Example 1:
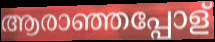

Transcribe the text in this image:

ആരാഞ്ഞപ്പോള്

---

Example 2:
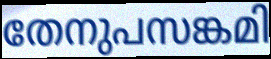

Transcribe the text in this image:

തേനുപസങ്കമി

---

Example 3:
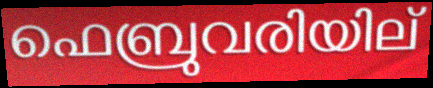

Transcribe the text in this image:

ഫെബ്രുവരിയില്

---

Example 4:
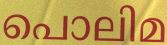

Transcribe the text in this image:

പൊലിമ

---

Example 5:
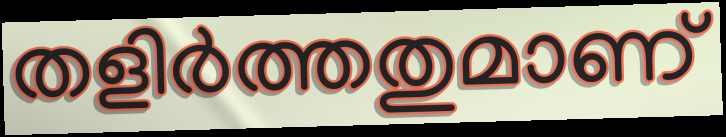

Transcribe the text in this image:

തളിർത്തതുമാണ്